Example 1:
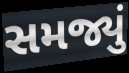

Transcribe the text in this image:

સમજ્યું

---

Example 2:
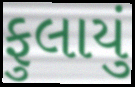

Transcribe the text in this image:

ફુલાયું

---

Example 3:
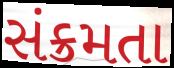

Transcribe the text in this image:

સંક્રમતા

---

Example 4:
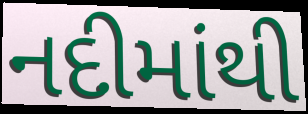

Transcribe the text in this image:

નદીમાંથી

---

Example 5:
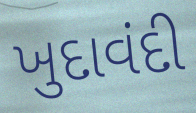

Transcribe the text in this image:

ખુદાવંદી